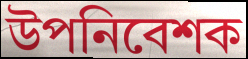
উপনিবেশক